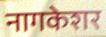
नागकेशर